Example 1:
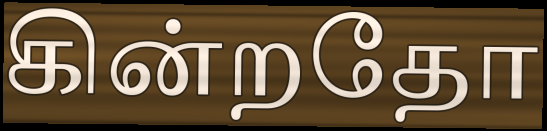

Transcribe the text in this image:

கின்றதோ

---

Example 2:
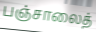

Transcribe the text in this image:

பஞ்சாலைத்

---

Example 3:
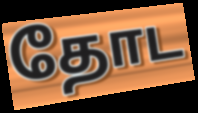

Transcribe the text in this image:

தோட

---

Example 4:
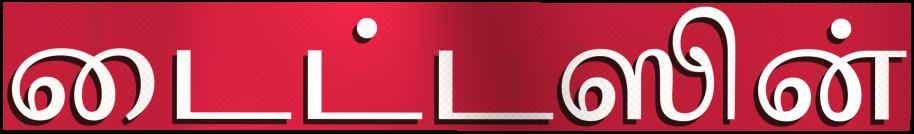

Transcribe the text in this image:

டைட்டஸின்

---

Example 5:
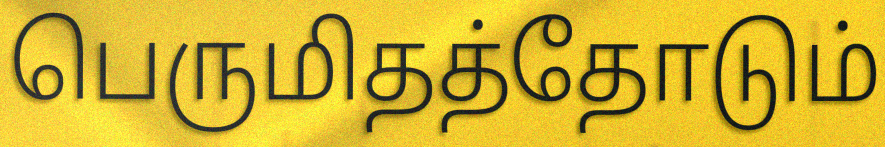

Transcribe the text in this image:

பெருமிதத்தோடும்